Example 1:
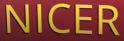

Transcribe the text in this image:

NICER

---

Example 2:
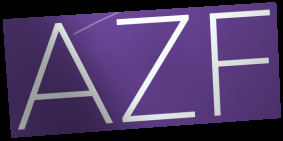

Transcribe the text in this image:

AZF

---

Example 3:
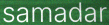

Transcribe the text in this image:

samadar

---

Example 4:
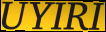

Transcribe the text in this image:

UYIRI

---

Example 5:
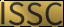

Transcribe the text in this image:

ISSC